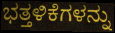
ಭತ್ತಳಿಕೆಗಳನ್ನು